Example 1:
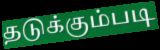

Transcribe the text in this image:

தடுக்கும்படி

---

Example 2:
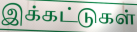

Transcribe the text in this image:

இக்கட்டுகள்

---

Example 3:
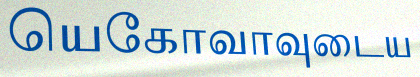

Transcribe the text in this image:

யெகோவாவுடைய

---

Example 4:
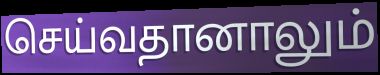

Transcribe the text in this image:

செய்வதானாலும்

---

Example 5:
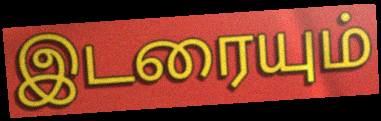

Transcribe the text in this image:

இடரையும்